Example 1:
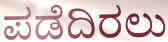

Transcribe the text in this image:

ಪಡೆದಿರಲು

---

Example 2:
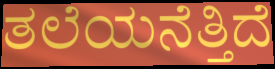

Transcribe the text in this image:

ತಲೆಯನೆತ್ತಿದೆ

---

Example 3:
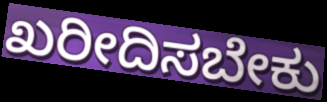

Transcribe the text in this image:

ಖರೀದಿಸಬೇಕು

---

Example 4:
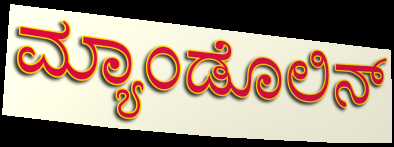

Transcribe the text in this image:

ಮ್ಯಾಂಡೊಲಿನ್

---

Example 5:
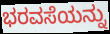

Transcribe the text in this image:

ಭರವಸೆಯನ್ನು